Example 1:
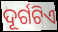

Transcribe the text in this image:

ଦୂର୍ଗଟିଏ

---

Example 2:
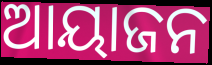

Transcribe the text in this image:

ଆୟାଜନ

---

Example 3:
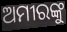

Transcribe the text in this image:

ଅମୀରଙ୍କୁ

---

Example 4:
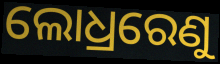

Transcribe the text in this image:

ଲୋଧ୍ରରେଣୁ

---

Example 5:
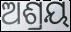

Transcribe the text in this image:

ଅଶ୍ରୟ